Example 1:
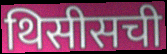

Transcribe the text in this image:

थिसीसची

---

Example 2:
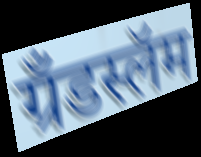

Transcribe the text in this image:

ग्रँडस्लॅम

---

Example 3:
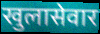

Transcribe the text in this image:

खुलासेवार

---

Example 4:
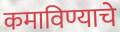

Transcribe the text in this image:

कमाविण्याचे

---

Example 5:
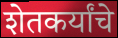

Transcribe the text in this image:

शेतकर्यांचे